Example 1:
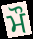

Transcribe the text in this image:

ਮੌ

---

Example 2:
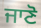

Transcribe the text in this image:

ਜਾਣੋ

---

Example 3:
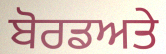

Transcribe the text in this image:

ਬੋਰਡਅਤੇ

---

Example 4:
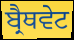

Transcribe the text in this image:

ਬ੍ਰੈਥਵੇਟ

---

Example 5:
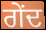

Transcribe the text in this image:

ਗੇਂਦ